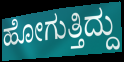
ಹೋಗುತ್ತಿದ್ದು